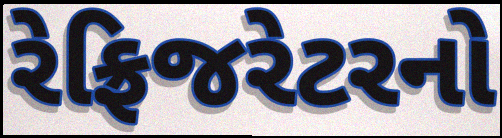
રેફ્રિજરેટરનો